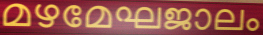
മഴമേഘജാലം